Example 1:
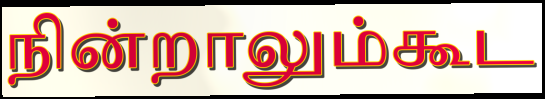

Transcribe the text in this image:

நின்றாலும்கூட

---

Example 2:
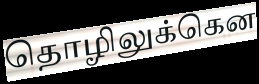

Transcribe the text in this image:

தொழிலுக்கென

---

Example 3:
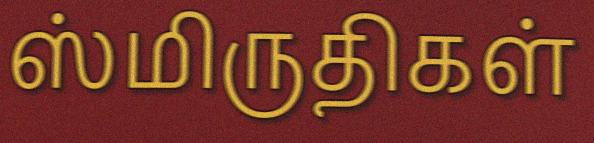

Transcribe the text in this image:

ஸ்மிருதிகள்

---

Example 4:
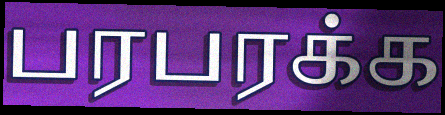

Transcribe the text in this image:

பரபரக்க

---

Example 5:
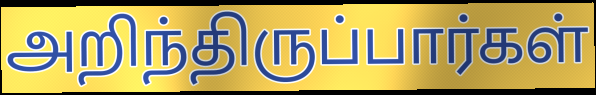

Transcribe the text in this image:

அறிந்திருப்பார்கள்